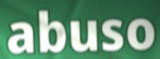
abuso